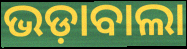
ଭଡ଼ାବାଲା